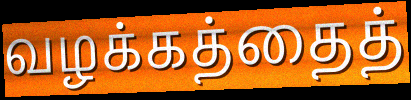
வழக்கத்தைத்